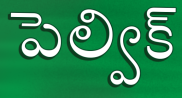
పెల్విక్